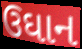
ઉઘાન